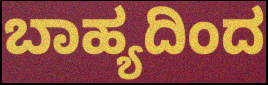
ಬಾಹ್ಯದಿಂದ